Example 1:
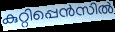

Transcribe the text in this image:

കുറ്റിപ്പെൻസിൽ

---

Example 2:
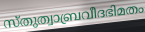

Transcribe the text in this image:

സ്തുത്വാബ്രവീദഭിമതം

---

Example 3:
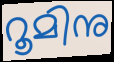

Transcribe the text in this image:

റൂമിനു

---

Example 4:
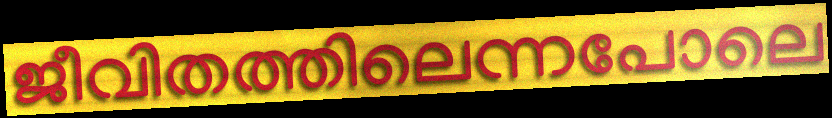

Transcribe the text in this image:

ജീവിതത്തിലെന്നപോലെ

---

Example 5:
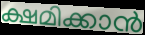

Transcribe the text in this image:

ക്ഷമിക്കാൻ